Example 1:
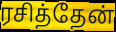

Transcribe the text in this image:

ரசித்தேன்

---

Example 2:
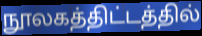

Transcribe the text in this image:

நூலகத்திட்டத்தில்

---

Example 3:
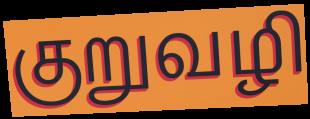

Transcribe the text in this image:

குறுவழி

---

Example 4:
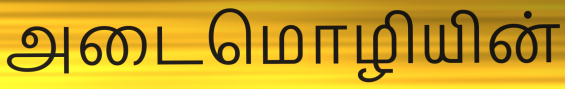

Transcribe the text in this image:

அடைமொழியின்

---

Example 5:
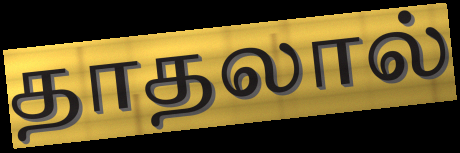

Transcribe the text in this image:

தாதலால்